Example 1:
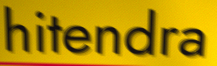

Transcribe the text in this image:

hitendra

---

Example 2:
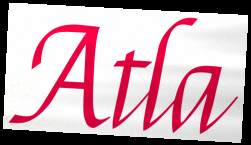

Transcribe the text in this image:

Atla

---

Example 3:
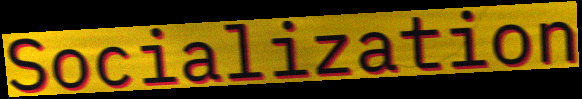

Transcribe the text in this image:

Socialization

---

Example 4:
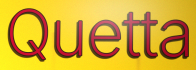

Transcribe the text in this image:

Quetta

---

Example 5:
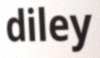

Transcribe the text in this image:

diley